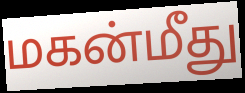
மகன்மீது